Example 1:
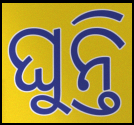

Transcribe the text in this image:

ଘୁନ୍ତି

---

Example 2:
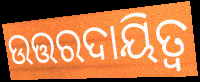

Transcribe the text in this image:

ଉତ୍ତରଦାୟିତ୍ଵ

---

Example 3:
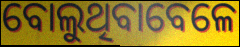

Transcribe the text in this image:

ବୋଲୁଥିବାବେଳେ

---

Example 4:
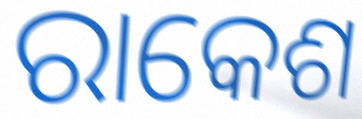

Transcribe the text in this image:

ରାକେଶ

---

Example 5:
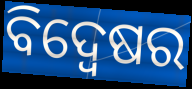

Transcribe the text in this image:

ବିଦ୍ବେଷର